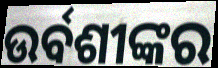
ଉର୍ବଶୀଙ୍କର